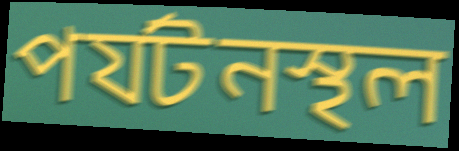
পর্যটনস্থল